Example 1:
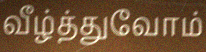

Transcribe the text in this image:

வீழ்த்துவோம்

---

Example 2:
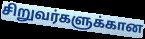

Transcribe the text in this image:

சிறுவர்களுக்கான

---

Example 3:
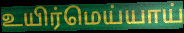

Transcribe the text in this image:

உயிர்மெய்யாய்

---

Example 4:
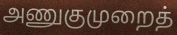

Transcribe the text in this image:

அணுகுமுறைத்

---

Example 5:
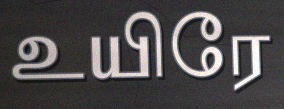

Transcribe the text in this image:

உயிரே